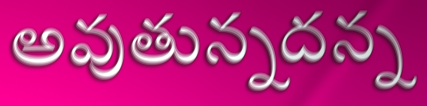
అవుతున్నదన్న